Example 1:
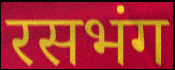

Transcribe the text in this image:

रसभंग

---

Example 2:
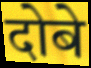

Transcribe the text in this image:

दोबे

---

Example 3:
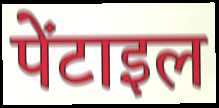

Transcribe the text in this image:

पेंटाइल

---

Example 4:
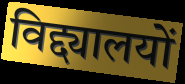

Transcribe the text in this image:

विद्द्यालयों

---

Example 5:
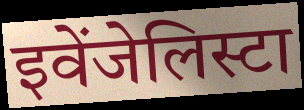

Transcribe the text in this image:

इवेंजेलिस्टा